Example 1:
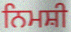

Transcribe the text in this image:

ਨਿਮਸ਼ੀ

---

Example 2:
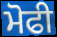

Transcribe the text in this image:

ਮੋਫੀ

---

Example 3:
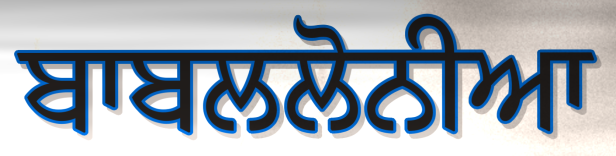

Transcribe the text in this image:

ਬਾਬਲਲੋਨੀਆ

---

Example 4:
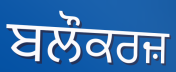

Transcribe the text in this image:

ਬਲੌਕਰਜ਼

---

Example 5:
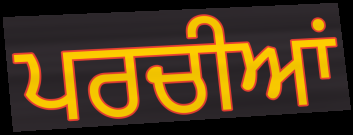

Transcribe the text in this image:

ਪਰਚੀਆਂ